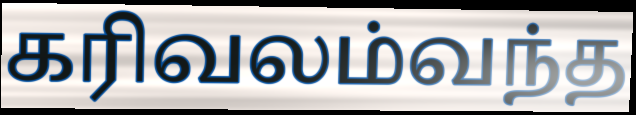
கரிவலம்வந்த